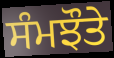
ਸੰਮਝੌਤੇ